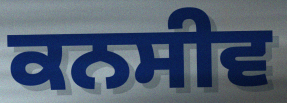
ਕਨਸੀਵ